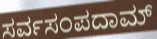
ಸರ್ವಸಂಪದಾಮ್